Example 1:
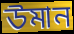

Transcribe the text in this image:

উমান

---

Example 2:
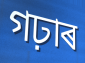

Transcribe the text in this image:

গঢ়াৰ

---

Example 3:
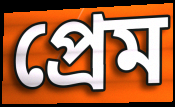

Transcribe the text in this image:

প্ৰেম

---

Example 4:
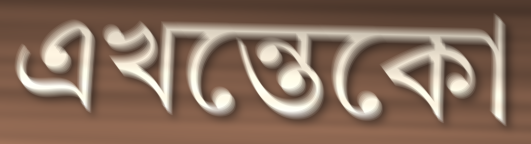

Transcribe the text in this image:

এখন্তেকো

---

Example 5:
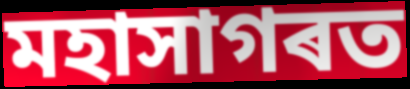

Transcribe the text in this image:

মহাসাগৰত